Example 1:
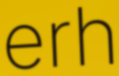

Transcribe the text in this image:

erh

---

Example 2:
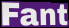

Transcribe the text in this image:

Fant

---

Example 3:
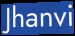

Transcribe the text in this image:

Jhanvi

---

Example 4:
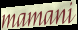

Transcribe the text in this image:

mamani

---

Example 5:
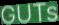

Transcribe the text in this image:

GUTs